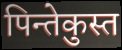
पिन्तेकुस्त